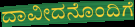
ದಾವೀದನೊಂದಿಗೆ